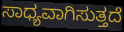
ಸಾಧ್ಯವಾಗಿಸುತ್ತದೆ